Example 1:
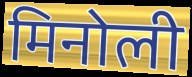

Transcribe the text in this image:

मिनोली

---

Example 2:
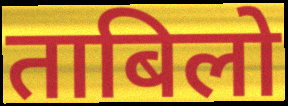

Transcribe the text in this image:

ताबिलो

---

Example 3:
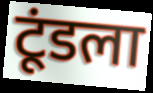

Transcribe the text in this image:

टूंडला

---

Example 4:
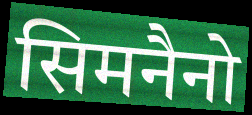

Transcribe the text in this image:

सिमनैनो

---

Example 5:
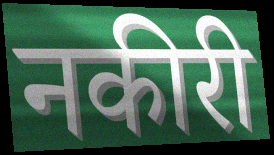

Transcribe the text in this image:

नकीरी